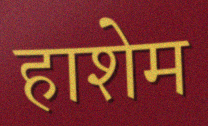
हाशेम